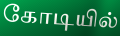
கோடியில்